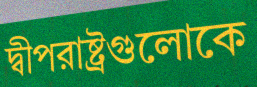
দ্বীপরাষ্ট্রগুলোকে